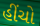
હીંચો